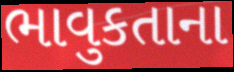
ભાવુકતાના